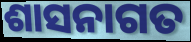
ଶାସନାଗତ